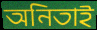
অনিতাই